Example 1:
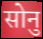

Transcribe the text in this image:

सोनु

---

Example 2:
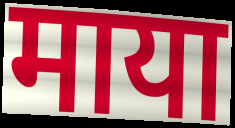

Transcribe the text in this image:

माया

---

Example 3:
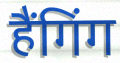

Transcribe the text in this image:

हैंगिंग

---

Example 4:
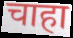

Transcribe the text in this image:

चाहा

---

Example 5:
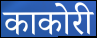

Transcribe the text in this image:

काकोरी